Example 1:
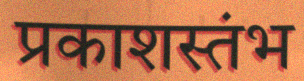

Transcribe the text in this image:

प्रकाशस्तंभ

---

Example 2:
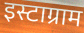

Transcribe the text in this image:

इस्टाग्राम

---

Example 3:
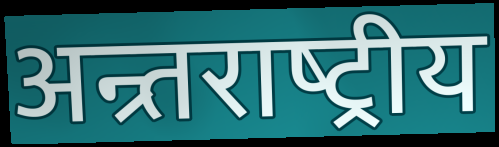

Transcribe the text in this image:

अन्र्तराष्ट्रीय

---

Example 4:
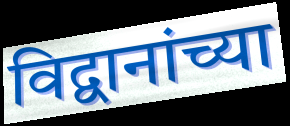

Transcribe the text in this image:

विद्वानांच्या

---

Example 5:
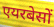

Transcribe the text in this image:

एयरबेसों